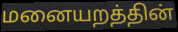
மனையறத்தின்